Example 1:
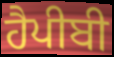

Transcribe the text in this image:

ਹੈਪੀਬੀ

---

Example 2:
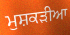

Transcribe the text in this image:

ਮੁਸ਼ਕੜੀਆ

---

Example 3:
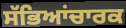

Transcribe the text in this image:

ਸੱਭਿਆਂਚਾਰਕ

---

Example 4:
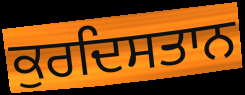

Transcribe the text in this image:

ਕੁਰਦਿਸਤਾਨ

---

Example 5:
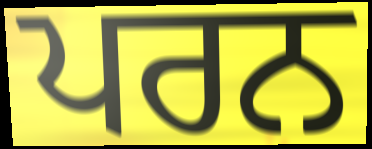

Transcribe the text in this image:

ਪਰਨ